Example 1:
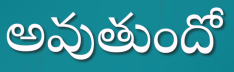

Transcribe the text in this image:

అవుతుందో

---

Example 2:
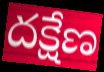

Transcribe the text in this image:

దక్షేణ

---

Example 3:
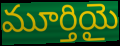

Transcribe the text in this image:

మూర్తియై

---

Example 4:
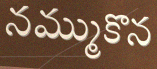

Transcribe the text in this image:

నమ్ముకొన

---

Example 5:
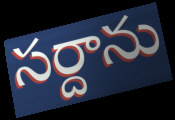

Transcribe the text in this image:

సర్దాను